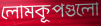
লোমকূপগুলো